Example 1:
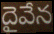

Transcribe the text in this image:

దైవేన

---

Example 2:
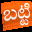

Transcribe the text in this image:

బట్టి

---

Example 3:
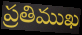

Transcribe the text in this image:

ప్రతిముఖ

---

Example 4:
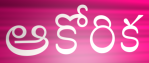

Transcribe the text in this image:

ఆకోరిక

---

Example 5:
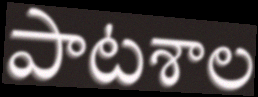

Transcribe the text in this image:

పాటశాల